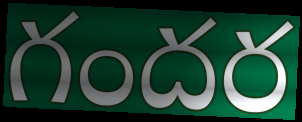
గందర